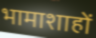
भामाशाहों